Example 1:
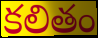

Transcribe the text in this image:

కలితం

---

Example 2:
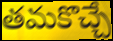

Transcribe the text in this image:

తమకొచ్చే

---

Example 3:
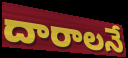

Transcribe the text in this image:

దారాలనే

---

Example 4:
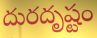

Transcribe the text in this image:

దురదృష్టం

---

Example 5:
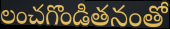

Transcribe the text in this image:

లంచగొండితనంతో